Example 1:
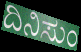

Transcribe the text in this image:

ದಿನಿಸುಂ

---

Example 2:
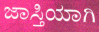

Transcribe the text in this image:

ಜಾಸ್ತಿಯಾಗಿ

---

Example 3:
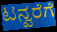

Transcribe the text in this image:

ಟನ್ವರೆಗೆ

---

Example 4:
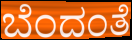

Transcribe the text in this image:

ಬೆಂದಂತೆ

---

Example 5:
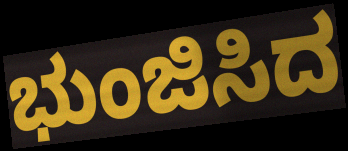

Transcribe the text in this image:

ಭುಂಜಿಸಿದ